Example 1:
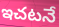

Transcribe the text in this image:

ఇచటనే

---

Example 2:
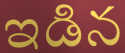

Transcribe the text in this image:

ఇడిన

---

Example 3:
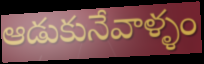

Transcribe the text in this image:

ఆడుకునేవాళ్ళం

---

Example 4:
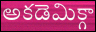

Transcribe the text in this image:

అకడెమిక్గా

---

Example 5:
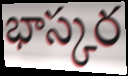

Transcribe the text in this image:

భాస్కర